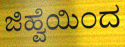
ಜಿಹ್ವೆಯಿಂದ